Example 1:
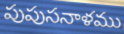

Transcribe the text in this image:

పుపుసనాళము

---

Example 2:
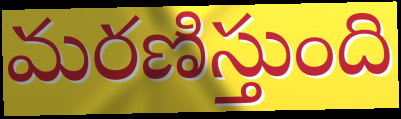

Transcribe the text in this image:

మరణిస్తుంది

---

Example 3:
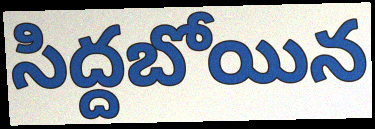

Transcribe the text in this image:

సిద్దబోయిన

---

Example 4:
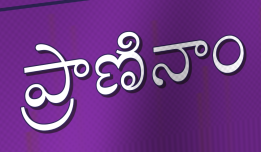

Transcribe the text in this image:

ప్రాణినాం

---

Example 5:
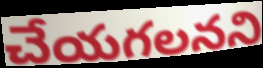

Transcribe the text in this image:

చేయగలనని